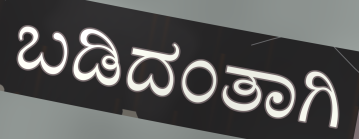
ಬಡಿದಂತಾಗಿ